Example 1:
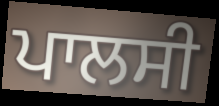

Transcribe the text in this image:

ਪਾਲਸੀ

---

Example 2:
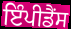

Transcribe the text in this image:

ਇੰਪੀਡੈਂਸ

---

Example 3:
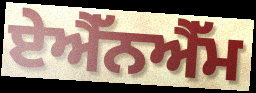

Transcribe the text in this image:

ਏਐੱਨਐੱਮ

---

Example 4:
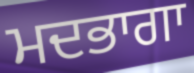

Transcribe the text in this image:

ਮਦਭਾਗਾ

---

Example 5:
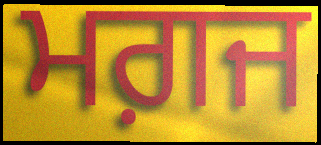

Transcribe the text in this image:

ਮਗ਼ਜ